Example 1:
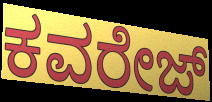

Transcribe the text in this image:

ಕವರೇಜ್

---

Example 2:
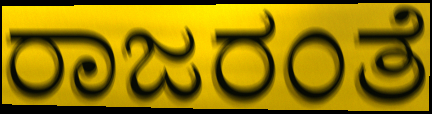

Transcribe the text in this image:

ರಾಜರಂತೆ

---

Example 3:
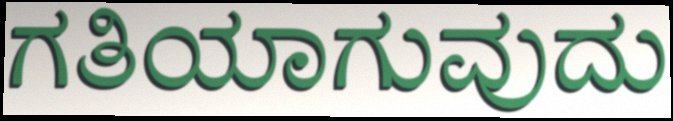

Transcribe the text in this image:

ಗತಿಯಾಗುವುದು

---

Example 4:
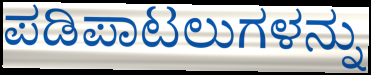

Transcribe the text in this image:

ಪಡಿಪಾಟಲುಗಳನ್ನು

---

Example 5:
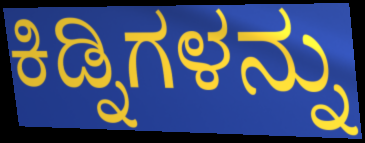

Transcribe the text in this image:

ಕಿಡ್ನಿಗಳನ್ನು